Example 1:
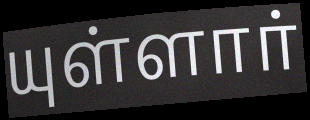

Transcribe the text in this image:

யுள்ளார்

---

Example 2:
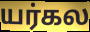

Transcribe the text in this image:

யர்கல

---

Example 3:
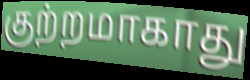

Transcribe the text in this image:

குற்றமாகாது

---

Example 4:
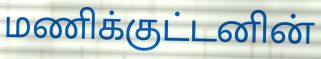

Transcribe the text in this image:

மணிக்குட்டனின்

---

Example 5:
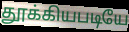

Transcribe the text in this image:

தூக்கியபடியே